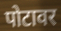
पोटावर